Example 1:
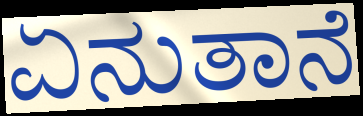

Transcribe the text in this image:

ಏನುತಾನೆ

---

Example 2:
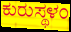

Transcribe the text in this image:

ಕುರುಸ್ಥಳಂ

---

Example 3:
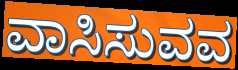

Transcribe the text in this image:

ವಾಸಿಸುವವ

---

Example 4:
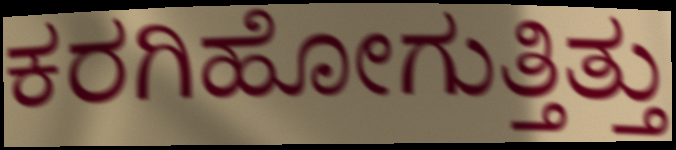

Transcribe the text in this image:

ಕರಗಿಹೋಗುತ್ತಿತ್ತು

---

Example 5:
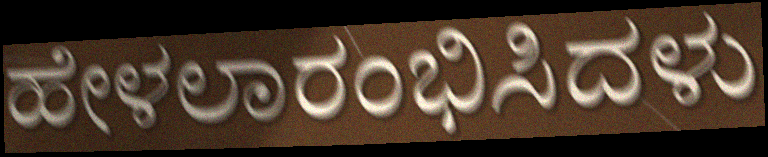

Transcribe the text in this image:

ಹೇಳಲಾರಂಭಿಸಿದಳು